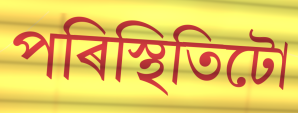
পৰিস্থিতিটো